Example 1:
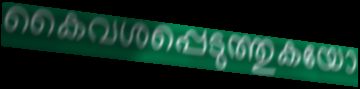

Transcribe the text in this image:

കൈവശപ്പെടുത്തുകയോ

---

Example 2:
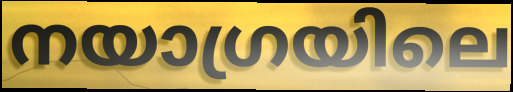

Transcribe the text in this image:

നയാഗ്രയിലെ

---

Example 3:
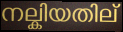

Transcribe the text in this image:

നല്കിയതില്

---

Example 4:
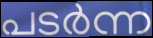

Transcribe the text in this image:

പടർന്ന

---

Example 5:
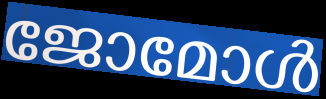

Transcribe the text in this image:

ജോമോൾ